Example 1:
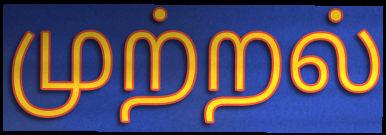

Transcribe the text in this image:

முற்றல்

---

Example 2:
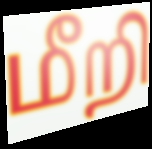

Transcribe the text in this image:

மீறி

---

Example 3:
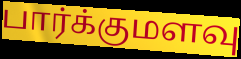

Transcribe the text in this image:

பார்க்குமளவு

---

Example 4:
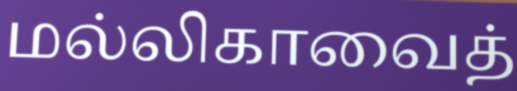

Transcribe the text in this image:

மல்லிகாவைத்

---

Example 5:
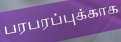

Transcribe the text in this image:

பரபரப்புக்காக